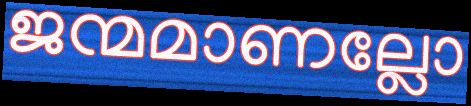
ജന്മമാണല്ലോ